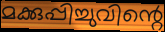
മക്കുപ്പിച്ചുവിന്റെ